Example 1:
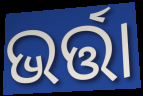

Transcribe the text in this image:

ଭର୍ତ୍ତା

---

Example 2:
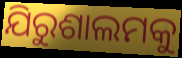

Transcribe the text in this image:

ଯିରୁଶାଲମକୁ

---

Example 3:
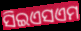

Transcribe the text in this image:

ସିଇଏସଏମ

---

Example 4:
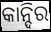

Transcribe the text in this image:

କାନ୍ଦିର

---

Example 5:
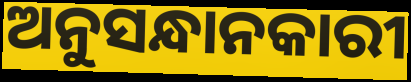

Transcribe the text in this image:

ଅନୁସନ୍ଧାନକାରୀ